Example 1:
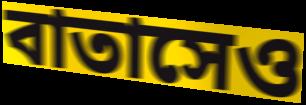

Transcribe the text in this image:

বাতাসেও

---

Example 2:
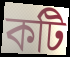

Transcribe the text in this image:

কটি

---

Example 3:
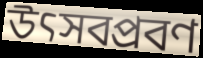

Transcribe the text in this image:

উৎসবপ্রবণ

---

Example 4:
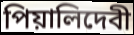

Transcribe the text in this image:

পিয়ালিদেবী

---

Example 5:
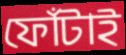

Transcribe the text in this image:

ফোঁটাই